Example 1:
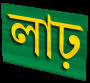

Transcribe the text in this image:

লাঢ়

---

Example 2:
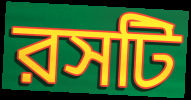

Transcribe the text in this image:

রসটি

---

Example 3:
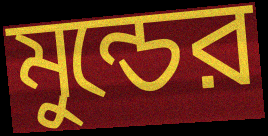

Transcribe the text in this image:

মুন্ডের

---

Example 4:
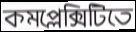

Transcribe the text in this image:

কমপ্লেক্সিটিতে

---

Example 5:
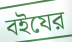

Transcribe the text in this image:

বইযের